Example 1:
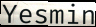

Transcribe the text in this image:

Yesmin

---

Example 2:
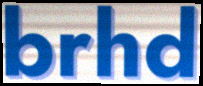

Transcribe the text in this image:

brhd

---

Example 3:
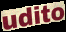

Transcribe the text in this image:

udito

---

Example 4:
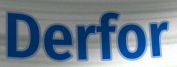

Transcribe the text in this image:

Derfor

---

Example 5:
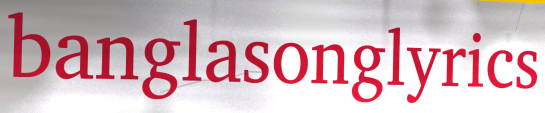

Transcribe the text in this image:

banglasonglyrics